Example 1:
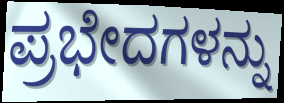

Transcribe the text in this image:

ಪ್ರಭೇದಗಳನ್ನು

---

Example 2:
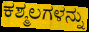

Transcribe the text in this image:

ಕಶ್ಮಲಗಳನ್ನು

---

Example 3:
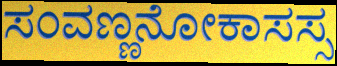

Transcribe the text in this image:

ಸಂವಣ್ಣನೋಕಾಸಸ್ಸ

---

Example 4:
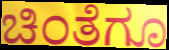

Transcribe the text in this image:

ಚಿಂತೆಗೂ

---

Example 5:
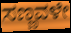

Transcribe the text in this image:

ಸಣ್ಣವಳೇ